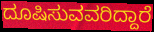
ದೂಷಿಸುವವರಿದ್ದಾರೆ